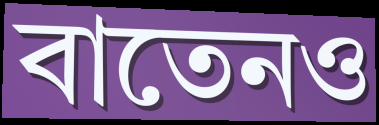
বাতেনও